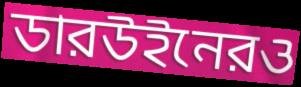
ডারউইনেরও